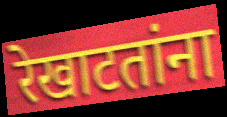
रेखाटतांना